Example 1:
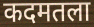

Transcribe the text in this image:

कदमतला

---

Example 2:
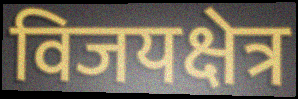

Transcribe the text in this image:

विजयक्षेत्र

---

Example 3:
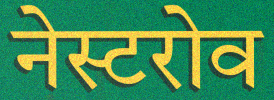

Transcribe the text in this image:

नेस्टरोव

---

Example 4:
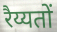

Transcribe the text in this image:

रैय्यतों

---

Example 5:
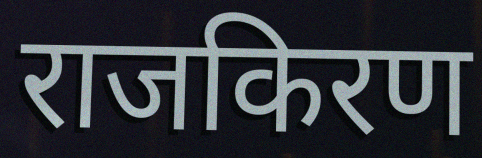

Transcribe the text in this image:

राजकिरण